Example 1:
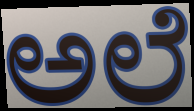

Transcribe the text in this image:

ಅಲೆ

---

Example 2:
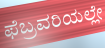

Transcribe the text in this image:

ಫೆಬ್ರವರಿಯಲ್ಲೇ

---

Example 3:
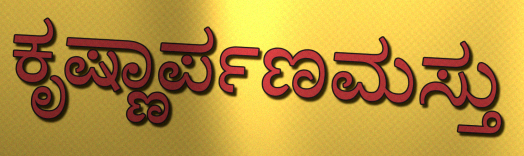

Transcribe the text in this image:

ಕೃಷ್ಣಾರ್ಪಣಮಸ್ತು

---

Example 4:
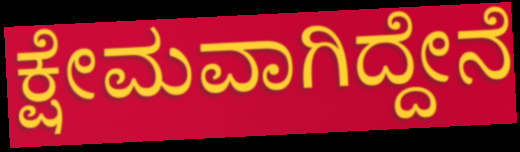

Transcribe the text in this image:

ಕ್ಷೇಮವಾಗಿದ್ದೇನೆ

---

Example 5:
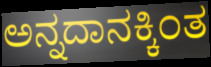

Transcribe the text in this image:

ಅನ್ನದಾನಕ್ಕಿಂತ